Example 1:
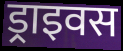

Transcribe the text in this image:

ड्राइवस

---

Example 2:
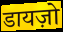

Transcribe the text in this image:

डायज़ो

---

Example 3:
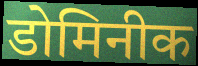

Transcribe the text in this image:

डोमिनीक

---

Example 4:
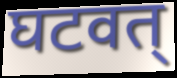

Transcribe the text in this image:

घटवत्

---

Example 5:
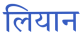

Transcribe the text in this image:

लियान